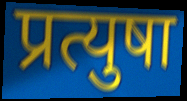
प्रत्युषा